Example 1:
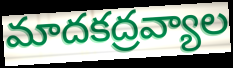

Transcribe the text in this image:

మాదకద్రవ్యాల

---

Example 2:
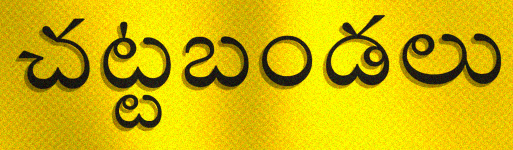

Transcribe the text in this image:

చట్టబండలు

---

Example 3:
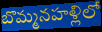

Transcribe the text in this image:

బొమ్మనహళ్లిలో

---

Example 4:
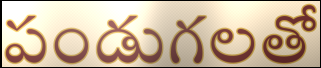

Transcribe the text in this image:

పండుగలతో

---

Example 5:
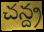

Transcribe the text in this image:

చన్ద్ర